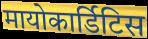
मायोकार्डिटिस